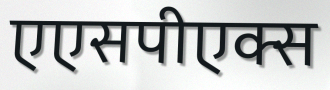
एएसपीएक्स